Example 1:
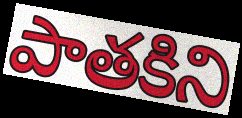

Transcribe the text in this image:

పాతకిని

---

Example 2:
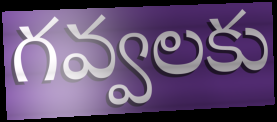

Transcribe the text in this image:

గవ్వలకు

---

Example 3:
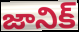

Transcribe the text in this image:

జానిక్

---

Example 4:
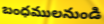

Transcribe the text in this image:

బంధములనుండి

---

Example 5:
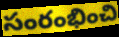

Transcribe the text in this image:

సంరంభించి